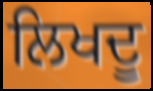
ਲਿਖਦੂ